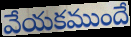
వేయకముందే